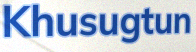
Khusugtun